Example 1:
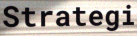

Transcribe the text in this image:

Strategi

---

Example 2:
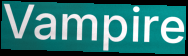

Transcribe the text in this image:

Vampire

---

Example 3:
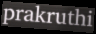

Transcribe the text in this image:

prakruthi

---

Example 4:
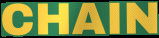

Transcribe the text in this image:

CHAIN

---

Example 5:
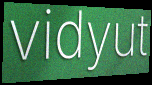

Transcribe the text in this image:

vidyut